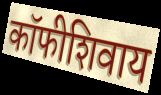
कॉफीशिवाय